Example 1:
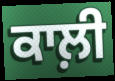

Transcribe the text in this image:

ਕਾਲ਼ੀ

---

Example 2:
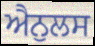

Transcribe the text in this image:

ਐਨੁਲਸ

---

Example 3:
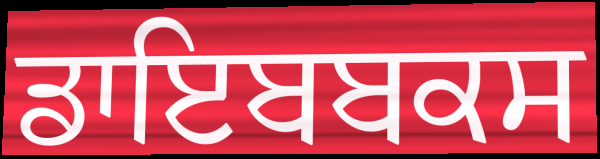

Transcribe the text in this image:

ਡਾਇਬਬਕਸ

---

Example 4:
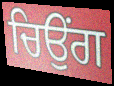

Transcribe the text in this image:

ਚਿਉਂਗ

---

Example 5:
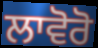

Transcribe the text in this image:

ਲਾਵੋਰੋ